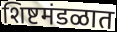
शिष्टमंडळात